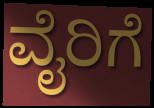
ವೈರಿಗೆ